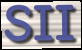
SII